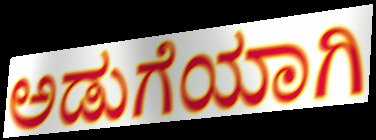
ಅಡುಗೆಯಾಗಿ